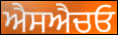
ਐਸਐਚਓ